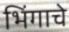
भिंगाचे